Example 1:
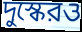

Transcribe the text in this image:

দুস্কেরও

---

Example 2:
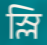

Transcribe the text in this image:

স্লি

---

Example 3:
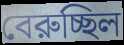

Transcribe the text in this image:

বেরুচ্ছিল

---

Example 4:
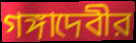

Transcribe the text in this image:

গঙ্গাদেবীর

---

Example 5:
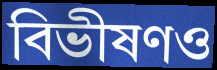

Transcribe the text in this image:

বিভীষণও